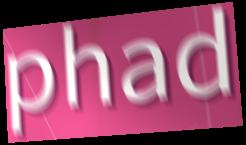
phad